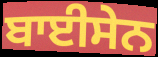
ਬਾਈਸੇਨ